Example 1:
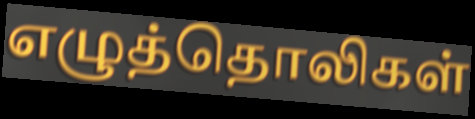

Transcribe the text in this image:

எழுத்தொலிகள்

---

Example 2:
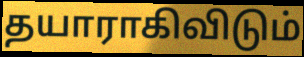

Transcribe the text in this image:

தயாராகிவிடும்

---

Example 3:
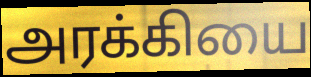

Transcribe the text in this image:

அரக்கியை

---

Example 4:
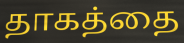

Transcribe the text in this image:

தாகத்தை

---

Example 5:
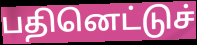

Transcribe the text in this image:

பதினெட்டுச்